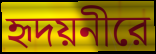
হৃদয়নীরে